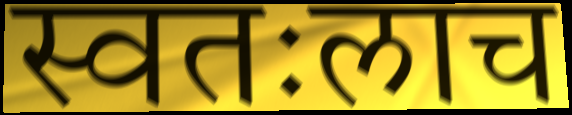
स्वतःलाच